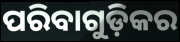
ପରିବାଗୁଡ଼ିକର